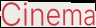
Cinema